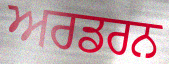
ਅਰਡਰਨ